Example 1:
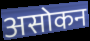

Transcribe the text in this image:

असोकन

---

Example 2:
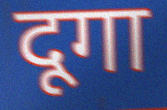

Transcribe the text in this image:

दूगा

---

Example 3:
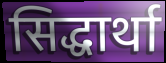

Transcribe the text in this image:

सिद्धार्था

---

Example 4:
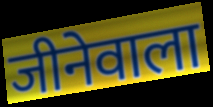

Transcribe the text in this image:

जीनेवाला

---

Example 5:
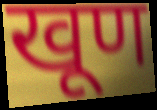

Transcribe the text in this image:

खूण